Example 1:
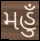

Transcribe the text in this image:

મહુઁ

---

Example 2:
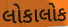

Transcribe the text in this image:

લોકાલોક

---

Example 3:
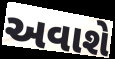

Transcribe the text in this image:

અવાશે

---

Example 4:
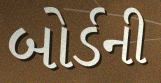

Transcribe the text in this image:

બોર્ડની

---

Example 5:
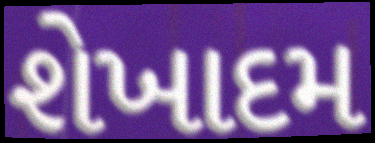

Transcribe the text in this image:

શેખાદમ